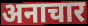
अनाचार